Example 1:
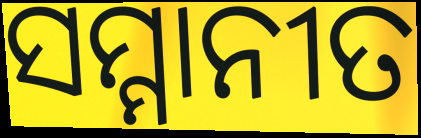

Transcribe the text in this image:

ସମ୍ମାନୀତ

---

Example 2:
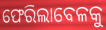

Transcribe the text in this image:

ଫେରିଲାବେଳକୁ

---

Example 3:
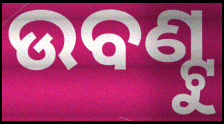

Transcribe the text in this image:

ଉବଣ୍ଟୁ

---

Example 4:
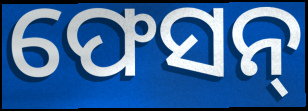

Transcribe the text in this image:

ଫେସନ୍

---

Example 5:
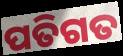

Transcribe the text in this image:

ପତିଗତ